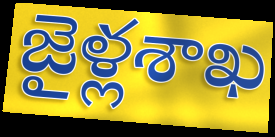
జైళ్లశాఖ